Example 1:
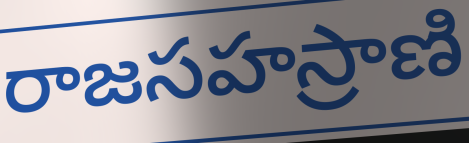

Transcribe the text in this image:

రాజసహస్రాణి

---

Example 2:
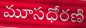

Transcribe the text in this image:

మూసధోరణి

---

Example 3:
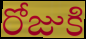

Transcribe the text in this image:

రోజుకి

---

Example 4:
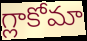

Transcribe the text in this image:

గ్లాకోమా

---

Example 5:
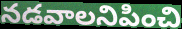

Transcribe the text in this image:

నడవాలనిపించి